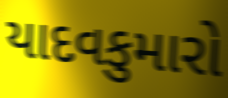
યાદવકુમારો